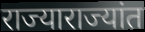
राज्याराज्यांत